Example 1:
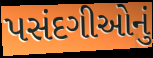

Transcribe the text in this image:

પસંદગીઓનું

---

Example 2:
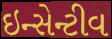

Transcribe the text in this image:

ઇન્સેન્ટીવ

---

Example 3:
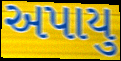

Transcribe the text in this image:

અપાયુ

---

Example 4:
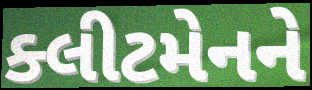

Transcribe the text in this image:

ક્લીટમેનને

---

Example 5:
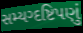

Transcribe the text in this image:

સમ્યગ્દષ્ટિપણું